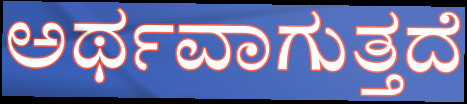
ಅರ್ಥವಾಗುತ್ತದೆ